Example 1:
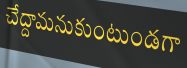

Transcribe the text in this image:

చేద్దామనుకుంటుండగా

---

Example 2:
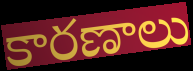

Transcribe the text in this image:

కారణాలు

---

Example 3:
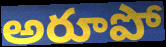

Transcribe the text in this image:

అరూపో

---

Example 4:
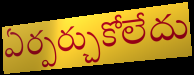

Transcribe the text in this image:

ఏర్పర్చుకోలేదు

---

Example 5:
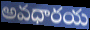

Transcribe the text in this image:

అవధారయ